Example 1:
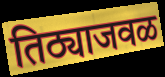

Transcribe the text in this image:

तिठ्याजवळ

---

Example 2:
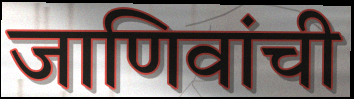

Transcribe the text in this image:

जाणिवांची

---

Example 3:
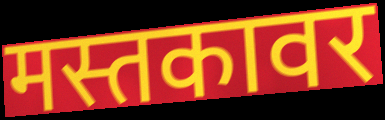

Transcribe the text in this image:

मस्तकावर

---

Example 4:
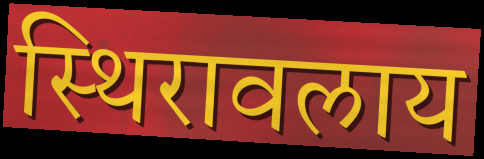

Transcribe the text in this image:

स्थिरावलाय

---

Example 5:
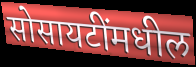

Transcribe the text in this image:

सोसायटींमधील